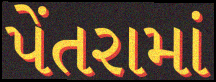
પેંતરામાં